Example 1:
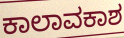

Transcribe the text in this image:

ಕಾಲಾವಕಾಶ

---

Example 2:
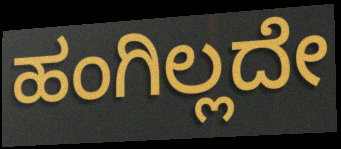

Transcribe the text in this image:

ಹಂಗಿಲ್ಲದೇ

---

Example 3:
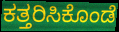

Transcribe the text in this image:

ಕತ್ತರಿಸಿಕೊಂಡೆ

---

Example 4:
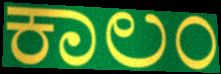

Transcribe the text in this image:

ಕಾಲಂ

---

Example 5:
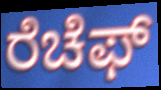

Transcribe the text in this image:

ರೆಚೆಫ್